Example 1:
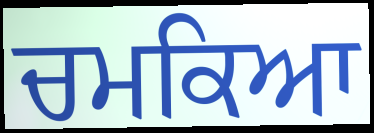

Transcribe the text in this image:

ਚਮਕਿਆ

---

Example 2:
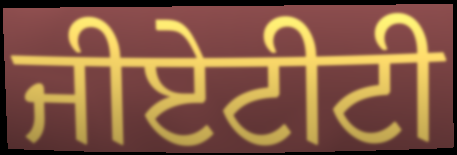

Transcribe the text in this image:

ਜੀਏਟੀਟੀ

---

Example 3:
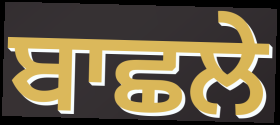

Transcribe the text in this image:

ਬਾਛਲੇ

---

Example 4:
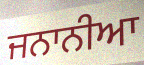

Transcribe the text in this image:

ਜਨਾਨੀਆ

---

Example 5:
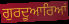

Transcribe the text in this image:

ਗੁਰਦੂਆਰਿਆਂ